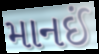
માનઈં